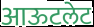
आऊटलेट